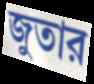
জুতার